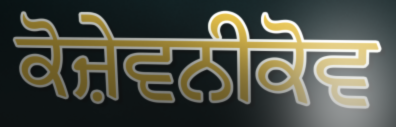
ਕੋਜ਼ੇਵਨੀਕੋਵ